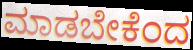
ಮಾಡಬೇಕೆಂದ